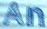
An